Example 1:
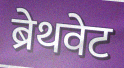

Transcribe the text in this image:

ब्रेथवेट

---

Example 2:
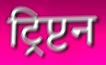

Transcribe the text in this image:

ट्रिप्टन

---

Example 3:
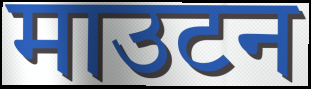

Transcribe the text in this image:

माउटन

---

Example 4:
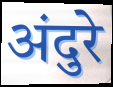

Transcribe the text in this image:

अंदुरे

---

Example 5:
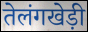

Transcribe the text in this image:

तेलंगखेड़ी